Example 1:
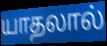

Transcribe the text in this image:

யாதலால்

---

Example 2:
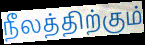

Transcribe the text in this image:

நீலத்திற்கும்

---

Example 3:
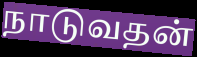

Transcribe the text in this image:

நாடுவதன்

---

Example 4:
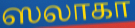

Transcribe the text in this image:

ஸலாகா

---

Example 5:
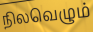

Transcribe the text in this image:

நிலவெழும்